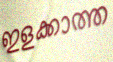
ഇളക്കാത്ത